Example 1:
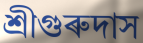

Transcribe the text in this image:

শ্ৰীগুৰুদাস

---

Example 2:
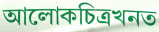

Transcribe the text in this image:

আলোকচিত্ৰখনত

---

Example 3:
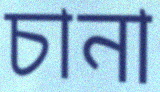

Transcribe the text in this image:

চানা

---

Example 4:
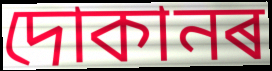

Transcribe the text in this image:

দোকানৰ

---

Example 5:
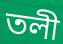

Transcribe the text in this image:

তলী